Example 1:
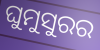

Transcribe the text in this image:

ଘୁମୁସୁରର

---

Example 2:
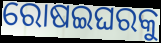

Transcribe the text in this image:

ରୋଷଇଘରକୁ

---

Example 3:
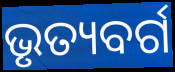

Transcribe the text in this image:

ଭୃତ୍ୟବର୍ଗ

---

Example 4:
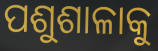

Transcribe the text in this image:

ପଶୁଶାଳାକୁ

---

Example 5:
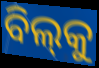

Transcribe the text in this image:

ବିଲ୍‌କୁ